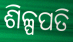
ଶିଳ୍ପପତି